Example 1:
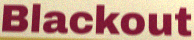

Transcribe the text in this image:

Blackout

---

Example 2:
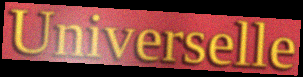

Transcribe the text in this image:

Universelle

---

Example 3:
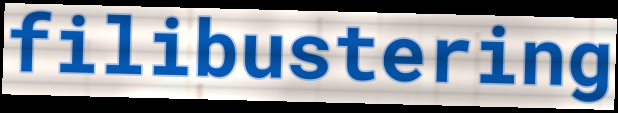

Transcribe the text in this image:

filibustering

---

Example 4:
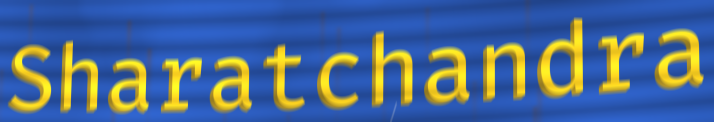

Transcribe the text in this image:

Sharatchandra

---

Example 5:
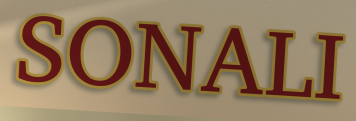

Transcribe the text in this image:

SONALI